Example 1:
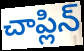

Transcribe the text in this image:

చాప్లిన్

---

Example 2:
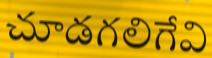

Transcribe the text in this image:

చూడగలిగేవి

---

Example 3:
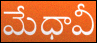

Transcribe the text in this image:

మేధావీ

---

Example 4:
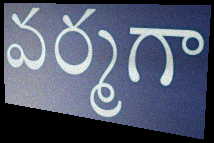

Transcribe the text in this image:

వర్మగా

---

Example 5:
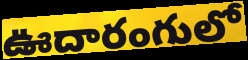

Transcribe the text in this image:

ఊదారంగులో